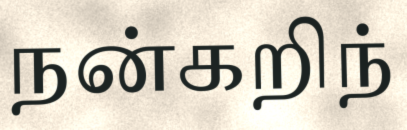
நன்கறிந்